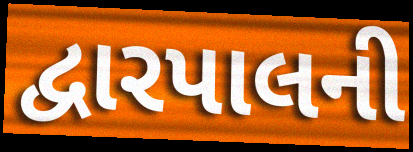
દ્વારપાલની